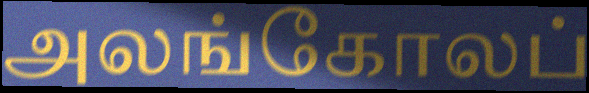
அலங்கோலப்